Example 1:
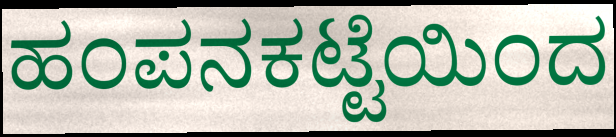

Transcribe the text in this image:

ಹಂಪನಕಟ್ಟೆಯಿಂದ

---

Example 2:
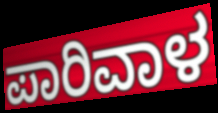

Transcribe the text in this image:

ಪಾರಿವಾಳ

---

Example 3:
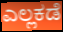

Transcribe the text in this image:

ಎಲ್ಲಕಡೆ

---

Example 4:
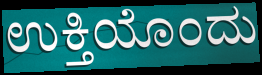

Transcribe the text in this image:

ಉಕ್ತಿಯೊಂದು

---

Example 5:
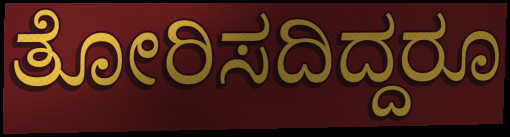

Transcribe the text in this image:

ತೋರಿಸದಿದ್ದರೂ